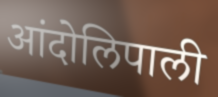
आंदोलिपाली